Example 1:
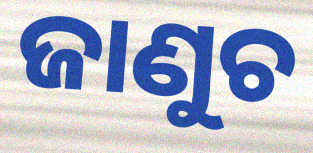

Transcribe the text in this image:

ଜାଣୁଚ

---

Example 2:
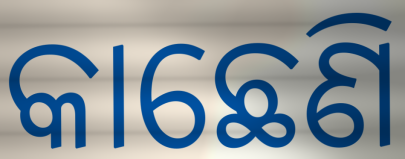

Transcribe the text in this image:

କାଛେଣି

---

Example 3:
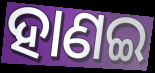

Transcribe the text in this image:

ହାଣଇ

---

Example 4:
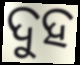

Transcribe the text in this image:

ଦୁହ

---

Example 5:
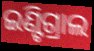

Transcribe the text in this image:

ଇଣ୍ଟିଗ୍ରାଲ